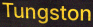
Tungston